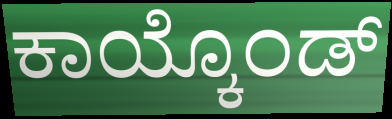
ಕಾಯ್ಕೊಂಡ್